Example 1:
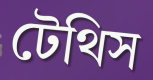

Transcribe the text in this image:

টেথিস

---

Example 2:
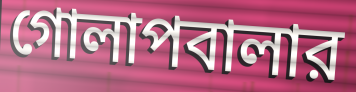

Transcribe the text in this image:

গোলাপবালার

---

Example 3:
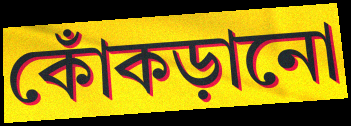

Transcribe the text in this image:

কোঁকড়ানো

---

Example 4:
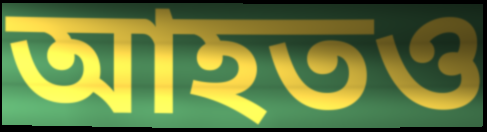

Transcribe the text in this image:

আহতও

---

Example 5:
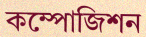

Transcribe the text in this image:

কম্পোজিশন